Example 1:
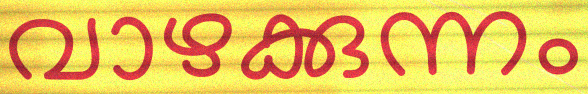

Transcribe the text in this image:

വാഴക്കുന്നം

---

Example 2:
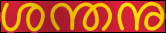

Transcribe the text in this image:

ശന്തനു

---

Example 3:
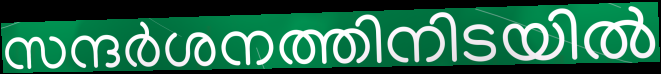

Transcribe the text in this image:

സന്ദർശനത്തിനിടയിൽ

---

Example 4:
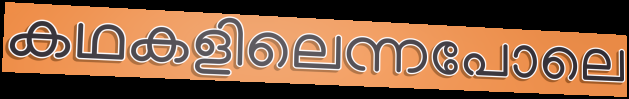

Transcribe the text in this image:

കഥകളിലെന്നപോലെ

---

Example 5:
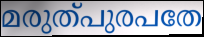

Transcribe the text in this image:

മരുത്പുരപതേ